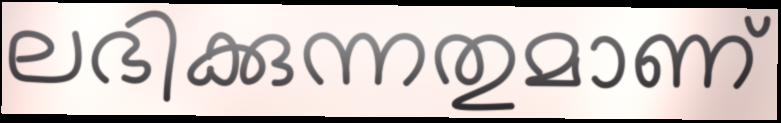
ലഭിക്കുന്നതുമാണ്